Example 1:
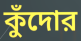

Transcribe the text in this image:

কুঁদোর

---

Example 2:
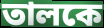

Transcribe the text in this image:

তালকে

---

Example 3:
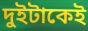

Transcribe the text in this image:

দুইটাকেই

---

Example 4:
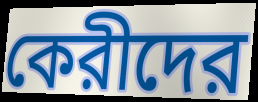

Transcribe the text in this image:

কেরীদের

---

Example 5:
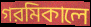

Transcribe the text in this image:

গরমিকালে